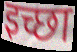
इच्छा